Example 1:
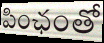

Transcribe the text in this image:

పింఛంతో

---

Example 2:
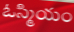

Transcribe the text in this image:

ఓస్మియం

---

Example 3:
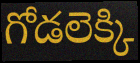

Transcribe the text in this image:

గోడలెక్కి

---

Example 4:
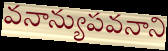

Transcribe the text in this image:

వనాన్యుపవనాని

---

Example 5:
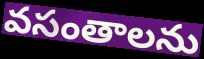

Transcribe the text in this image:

వసంతాలను